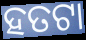
ହତଟା